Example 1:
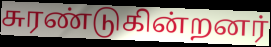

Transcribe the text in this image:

சுரண்டுகின்றனர்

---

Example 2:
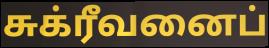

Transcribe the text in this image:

சுக்ரீவனைப்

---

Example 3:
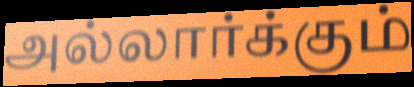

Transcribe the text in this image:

அல்லார்க்கும்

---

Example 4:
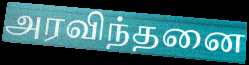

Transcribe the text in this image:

அரவிந்தனை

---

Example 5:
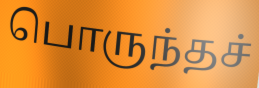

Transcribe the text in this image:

பொருந்தச்